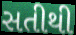
સતીથી